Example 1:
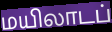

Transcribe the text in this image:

மயிலாடப்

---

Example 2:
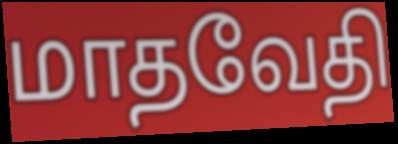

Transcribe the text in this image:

மாதவேதி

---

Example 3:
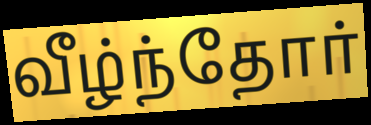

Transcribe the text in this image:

வீழ்ந்தோர்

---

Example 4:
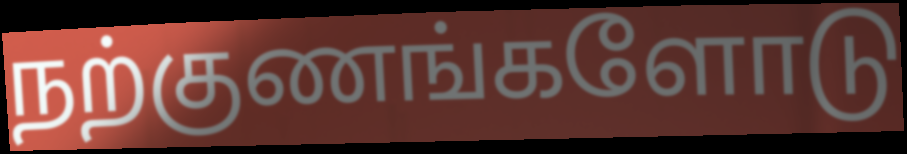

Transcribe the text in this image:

நற்குணங்களோடு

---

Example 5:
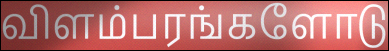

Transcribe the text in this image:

விளம்பரங்களோடு